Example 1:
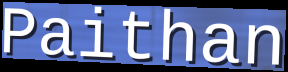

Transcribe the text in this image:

Paithan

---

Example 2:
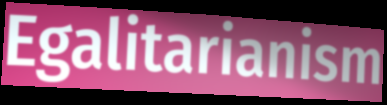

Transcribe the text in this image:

Egalitarianism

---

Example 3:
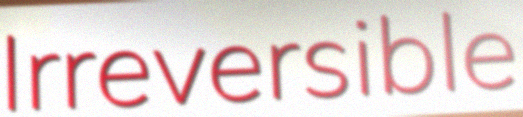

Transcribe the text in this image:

Irreversible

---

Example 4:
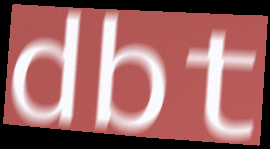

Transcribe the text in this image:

dbt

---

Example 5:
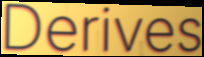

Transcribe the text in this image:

Derives